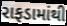
રાફડામાંથી